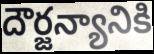
దౌర్జన్యానికి